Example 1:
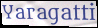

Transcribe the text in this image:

Yaragatti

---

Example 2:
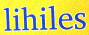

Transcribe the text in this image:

lihiles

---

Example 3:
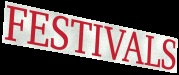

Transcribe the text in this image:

FESTIVALS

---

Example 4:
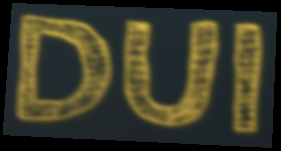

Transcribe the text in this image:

DUI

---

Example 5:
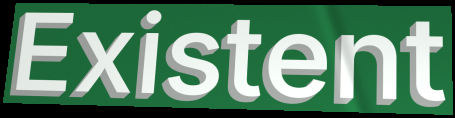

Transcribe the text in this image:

Existent